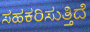
ಸಹಕರಿಸುತ್ತಿದೆ